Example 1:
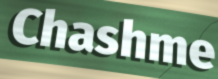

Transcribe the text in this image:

Chashme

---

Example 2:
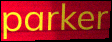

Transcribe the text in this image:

parker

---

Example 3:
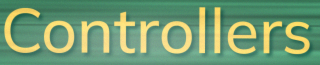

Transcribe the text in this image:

Controllers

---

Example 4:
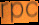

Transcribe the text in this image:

rpc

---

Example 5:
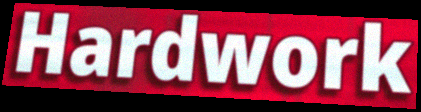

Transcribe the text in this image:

Hardwork